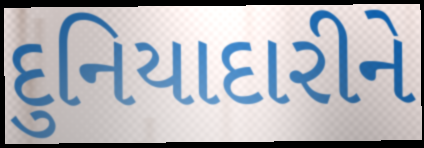
દુનિયાદારીને